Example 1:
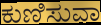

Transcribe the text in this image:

ಕುಣಿಸುವಾ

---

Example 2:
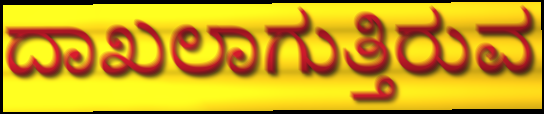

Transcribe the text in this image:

ದಾಖಲಾಗುತ್ತಿರುವ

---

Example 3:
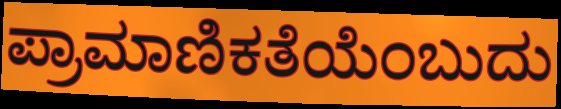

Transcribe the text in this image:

ಪ್ರಾಮಾಣಿಕತೆಯೆಂಬುದು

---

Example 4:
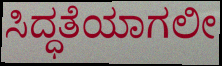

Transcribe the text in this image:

ಸಿದ್ಧತೆಯಾಗಲೀ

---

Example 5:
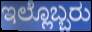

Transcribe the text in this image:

ಇಲ್ಲೊಬ್ಬರು